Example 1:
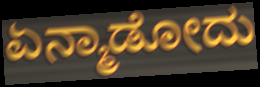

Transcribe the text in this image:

ಏನ್ಮಾಡೋದು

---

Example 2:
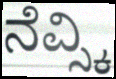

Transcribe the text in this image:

ನೆವ್ಸ್ಕಿ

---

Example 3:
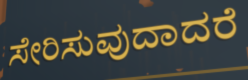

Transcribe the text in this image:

ಸೇರಿಸುವುದಾದರೆ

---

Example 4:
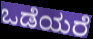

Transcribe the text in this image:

ಒಡೆಯರೆ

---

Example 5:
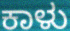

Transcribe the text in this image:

ಕಾಳು